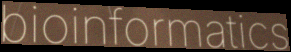
bioinformatics